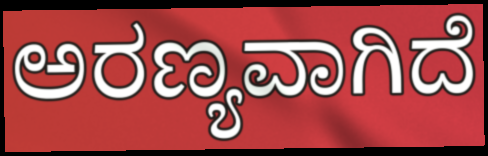
ಅರಣ್ಯವಾಗಿದೆ